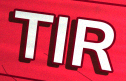
TIR